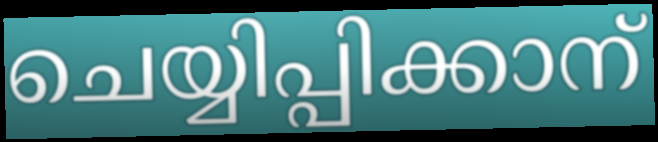
ചെയ്യിപ്പിക്കാന്